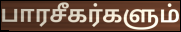
பாரசீகர்களும்